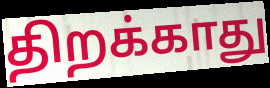
திறக்காது